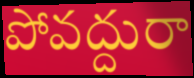
పోవద్దురా